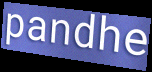
pandhe